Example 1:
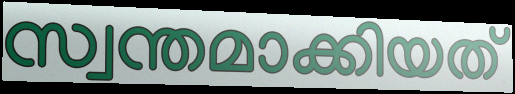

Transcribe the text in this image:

സ്വന്തമാക്കിയത്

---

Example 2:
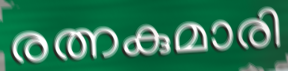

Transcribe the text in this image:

രത്നകുമാരി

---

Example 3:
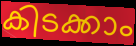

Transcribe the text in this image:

കിടക്കാം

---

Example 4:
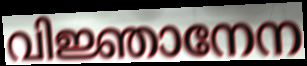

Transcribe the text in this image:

വിജ്ഞാനേന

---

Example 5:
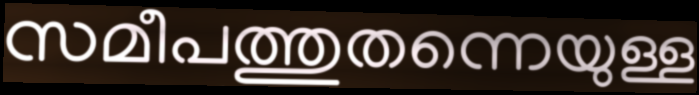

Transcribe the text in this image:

സമീപത്തുതന്നെയുള്ള